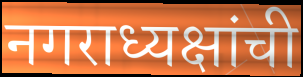
नगराध्यक्षांची